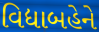
વિદ્યાબહેને